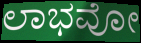
ಲಾಭವೋ